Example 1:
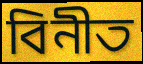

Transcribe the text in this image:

বিনীত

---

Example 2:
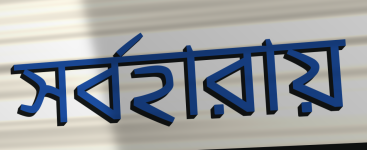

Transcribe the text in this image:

সর্বহারায়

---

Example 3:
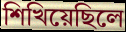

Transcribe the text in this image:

শিখিয়েছিলে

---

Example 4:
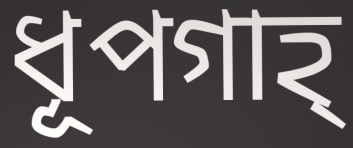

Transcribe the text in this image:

ধূপগাহ্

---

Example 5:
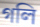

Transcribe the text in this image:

গলি